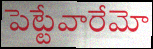
పెట్టేవారేమో